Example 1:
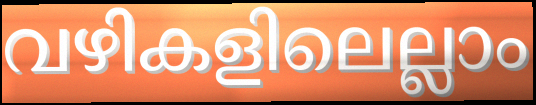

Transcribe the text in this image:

വഴികളിലെല്ലാം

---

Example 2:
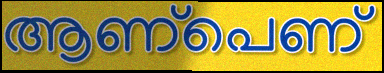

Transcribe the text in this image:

ആണ്പെണ്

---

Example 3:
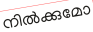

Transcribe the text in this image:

നിൽക്കുമോ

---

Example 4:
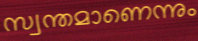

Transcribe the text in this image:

സ്വന്തമാണെന്നും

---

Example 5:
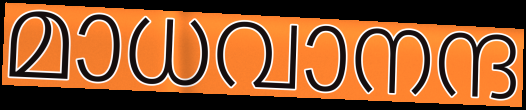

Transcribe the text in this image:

മാധവാനന്ദ